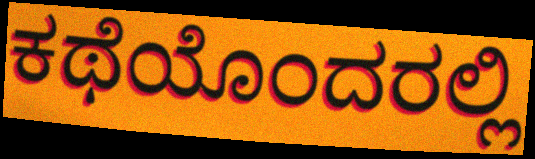
ಕಥೆಯೊಂದರಲ್ಲಿ